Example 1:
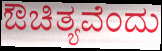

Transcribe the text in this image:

ಔಚಿತ್ಯವೆಂದು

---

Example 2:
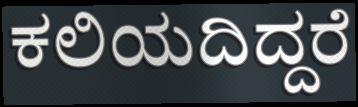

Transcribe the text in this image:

ಕಲಿಯದಿದ್ದರೆ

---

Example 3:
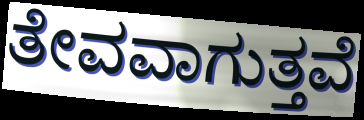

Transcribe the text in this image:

ತೇವವಾಗುತ್ತವೆ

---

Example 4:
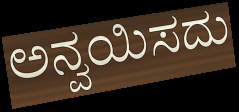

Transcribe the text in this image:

ಅನ್ವಯಿಸದು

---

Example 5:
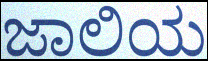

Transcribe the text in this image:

ಜಾಲಿಯ